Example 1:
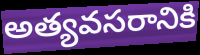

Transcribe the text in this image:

అత్యవసరానికి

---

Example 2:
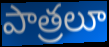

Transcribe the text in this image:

పాత్రలూ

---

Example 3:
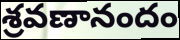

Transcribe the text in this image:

శ్రవణానందం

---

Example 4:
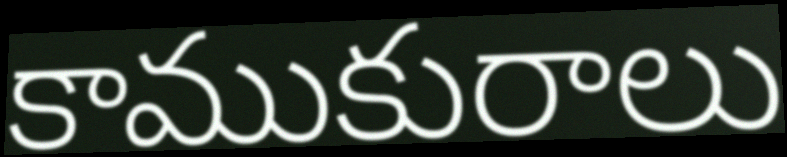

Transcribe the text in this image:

కాముకురాలు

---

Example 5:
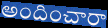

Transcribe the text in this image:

అందించారా